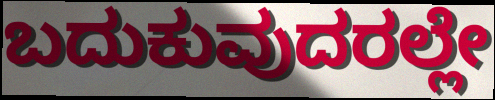
ಬದುಕುವುದರಲ್ಲೇ